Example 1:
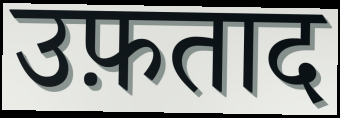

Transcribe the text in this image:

उफ़ताद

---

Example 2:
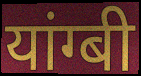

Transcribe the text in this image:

यांग्बी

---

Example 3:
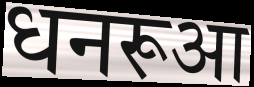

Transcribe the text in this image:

धनरूआ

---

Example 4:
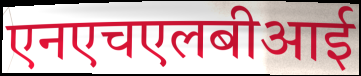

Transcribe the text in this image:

एनएचएलबीआई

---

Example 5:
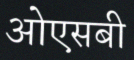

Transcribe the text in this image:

ओएसबी